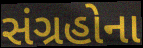
સંગ્રહોના